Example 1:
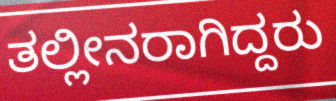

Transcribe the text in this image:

ತಲ್ಲೀನರಾಗಿದ್ದರು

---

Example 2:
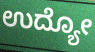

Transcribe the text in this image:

ಉದ್ಯೋ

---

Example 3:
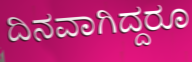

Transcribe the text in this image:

ದಿನವಾಗಿದ್ದರೂ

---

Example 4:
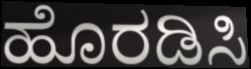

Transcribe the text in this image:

ಹೊರಡಿಸಿ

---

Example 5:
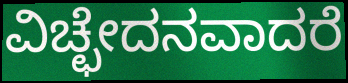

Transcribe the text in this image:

ವಿಚ್ಛೇದನವಾದರೆ